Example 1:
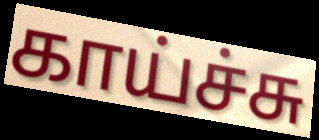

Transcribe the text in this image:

காய்ச்சு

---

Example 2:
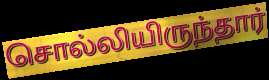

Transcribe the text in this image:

சொல்லியிருந்தார்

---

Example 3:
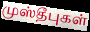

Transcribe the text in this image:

முஸ்தீபுகள்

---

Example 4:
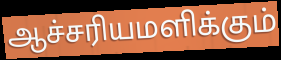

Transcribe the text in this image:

ஆச்சரியமளிக்கும்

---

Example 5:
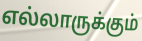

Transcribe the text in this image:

எல்லாருக்கும்